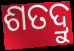
ଶତଦ୍ରୁ